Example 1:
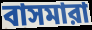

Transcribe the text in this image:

বাসমারা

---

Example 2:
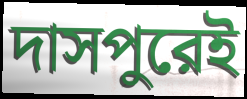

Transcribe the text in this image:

দাসপুরেই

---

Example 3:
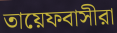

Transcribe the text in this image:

তায়েফবাসীরা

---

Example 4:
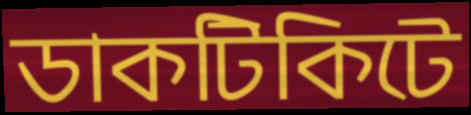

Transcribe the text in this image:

ডাকটিকিটে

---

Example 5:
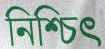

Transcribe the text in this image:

নিশ্চিৎ